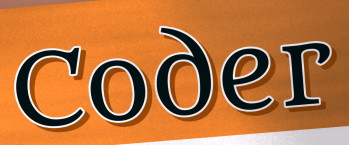
Coder